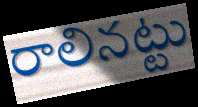
రాలినట్టు